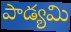
పాడ్యమి